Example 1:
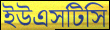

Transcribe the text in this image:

ইউএসটিসি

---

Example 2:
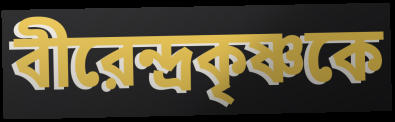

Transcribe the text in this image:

বীরেন্দ্রকৃষ্ণকে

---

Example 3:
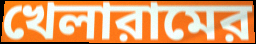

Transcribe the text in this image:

খেলারামের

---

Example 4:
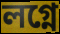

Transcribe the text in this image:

লগ্নে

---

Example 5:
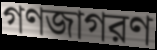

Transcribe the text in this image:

গণজাগরণ